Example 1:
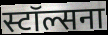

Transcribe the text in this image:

स्टॉल्सना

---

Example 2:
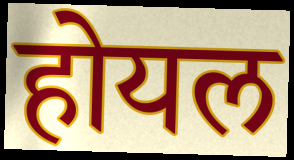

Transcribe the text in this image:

होयल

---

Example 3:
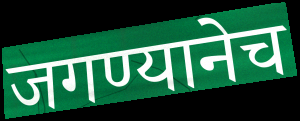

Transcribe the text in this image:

जगण्यानेच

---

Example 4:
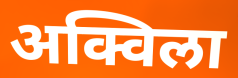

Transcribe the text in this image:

अक्विला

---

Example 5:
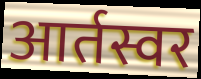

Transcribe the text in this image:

आर्तस्वर